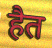
हैत